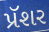
પ્રૅશર